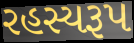
રહસ્યરૂપ